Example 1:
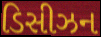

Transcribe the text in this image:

ડિસીઝન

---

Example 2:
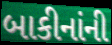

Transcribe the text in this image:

બાકીનાંની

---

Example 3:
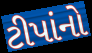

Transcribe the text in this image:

ટીપાંનો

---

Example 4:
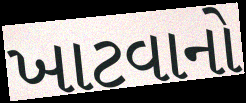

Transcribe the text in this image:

ખાટવાનો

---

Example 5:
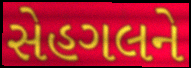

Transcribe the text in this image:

સેહગલને